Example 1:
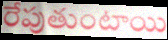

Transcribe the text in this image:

రేపుతుంటాయి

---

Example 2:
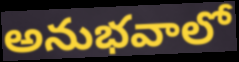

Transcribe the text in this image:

అనుభవాలో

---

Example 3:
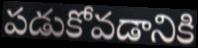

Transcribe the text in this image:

పడుకోవడానికి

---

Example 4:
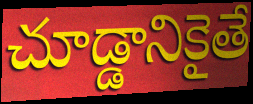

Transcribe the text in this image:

చూడ్డానికైతే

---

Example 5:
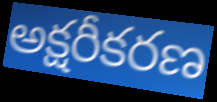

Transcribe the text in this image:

అక్షరీకరణ